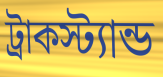
ট্রাকস্ট্যান্ড